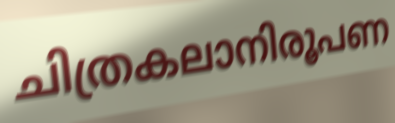
ചിത്രകലാനിരൂപണ